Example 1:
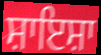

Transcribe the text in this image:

ਸ਼ਾਇਸ਼ਾ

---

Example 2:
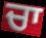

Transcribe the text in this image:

ਚਾ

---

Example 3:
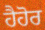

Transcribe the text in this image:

ਹੈਹੋਰ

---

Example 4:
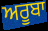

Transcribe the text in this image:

ਅਰੂਬਾ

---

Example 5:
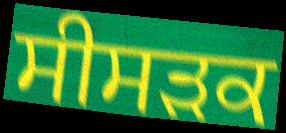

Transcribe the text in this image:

ਸੀਸੜਕ